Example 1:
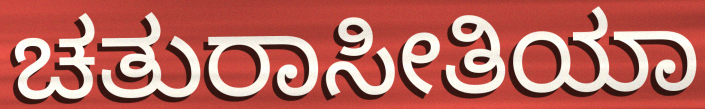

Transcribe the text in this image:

ಚತುರಾಸೀತಿಯಾ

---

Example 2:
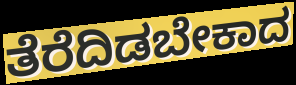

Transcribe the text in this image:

ತೆರೆದಿಡಬೇಕಾದ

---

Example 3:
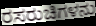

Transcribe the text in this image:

ರಸರುಚಿಗಳನು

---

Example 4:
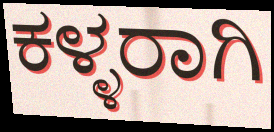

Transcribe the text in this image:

ಕಳ್ಳರಾಗಿ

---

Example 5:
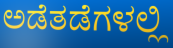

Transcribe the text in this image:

ಅಡೆತಡೆಗಳಲ್ಲಿ